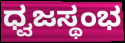
ಧ್ವಜಸ್ಥಂಭ